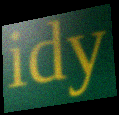
idy